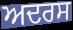
ਅਦਰਸ